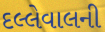
દલ્લેવાલની